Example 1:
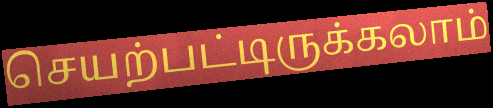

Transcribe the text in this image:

செயற்பட்டிருக்கலாம்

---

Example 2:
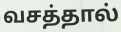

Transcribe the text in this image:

வசத்தால்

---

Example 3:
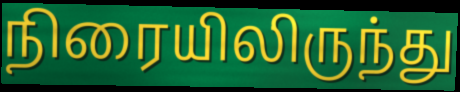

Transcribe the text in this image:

நிரையிலிருந்து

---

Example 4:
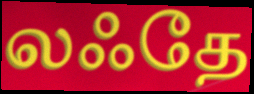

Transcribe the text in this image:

லஃதே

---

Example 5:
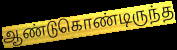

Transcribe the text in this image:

ஆண்டுகொண்டிருந்த